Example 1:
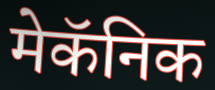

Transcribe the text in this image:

मेकॅनिक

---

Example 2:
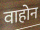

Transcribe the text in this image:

वाहोन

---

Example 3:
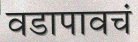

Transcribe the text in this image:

वडापावचं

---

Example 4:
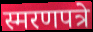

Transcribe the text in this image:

स्मरणपत्रे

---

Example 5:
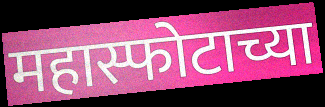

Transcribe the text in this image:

महास्फोटाच्या